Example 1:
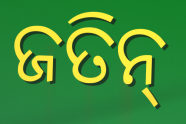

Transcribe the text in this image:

ଜତିନ୍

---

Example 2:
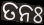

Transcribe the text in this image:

ତନଃ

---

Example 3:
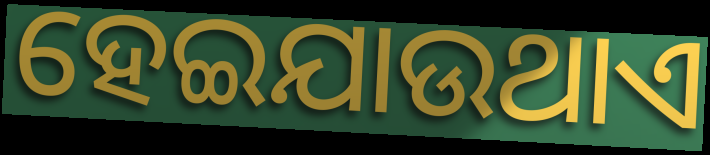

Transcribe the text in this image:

ହେଇଯାଉଥାଏ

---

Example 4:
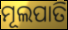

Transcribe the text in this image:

ମୂଲପାତି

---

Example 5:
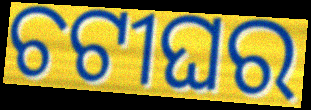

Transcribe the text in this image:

ଚଟୀଘର